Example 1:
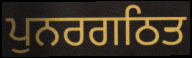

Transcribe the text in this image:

ਪੁਨਰਗਠਿਤ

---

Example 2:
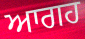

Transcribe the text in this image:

ਆਗਹ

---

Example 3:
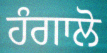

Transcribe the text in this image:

ਹੰਗਾਲੋ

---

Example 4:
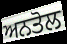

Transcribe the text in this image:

ਅਨਤੋਲ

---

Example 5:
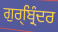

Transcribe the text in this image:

ਗੁਰ੍ਬ੍ਰਿੰਦਰ